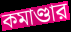
কমাণ্ডার